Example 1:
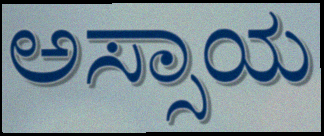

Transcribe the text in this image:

ಅಸ್ಸಾಯ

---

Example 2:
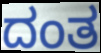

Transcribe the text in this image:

ದಂತ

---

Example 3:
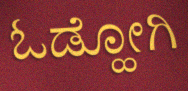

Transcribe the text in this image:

ಓಡ್ಹೋಗಿ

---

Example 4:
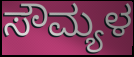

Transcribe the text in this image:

ಸೌಮ್ಯಳ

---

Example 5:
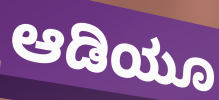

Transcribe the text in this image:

ಆಡಿಯೂ